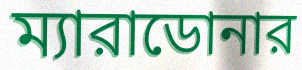
ম্যারাডোনার